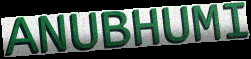
ANUBHUMI